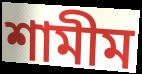
শামীম